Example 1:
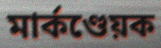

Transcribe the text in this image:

মাৰ্কণ্ডেয়ক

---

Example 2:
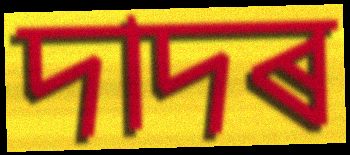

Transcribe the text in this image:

দাদৰ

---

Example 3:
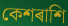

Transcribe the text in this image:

কেশৰাশি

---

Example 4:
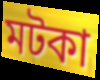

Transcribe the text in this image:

মটকা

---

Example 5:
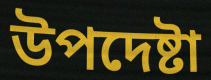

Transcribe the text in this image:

উপদেষ্টা